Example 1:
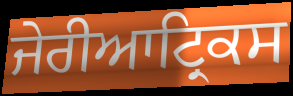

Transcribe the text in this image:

ਜੇਰੀਆਟ੍ਰਿਕਸ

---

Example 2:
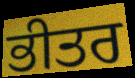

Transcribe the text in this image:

ਭੀਤਰ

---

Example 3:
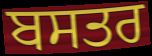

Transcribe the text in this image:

ਬਸਤਰ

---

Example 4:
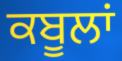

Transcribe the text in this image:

ਕਬੂਲਾਂ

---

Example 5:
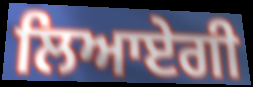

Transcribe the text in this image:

ਲਿਆਏਗੀ